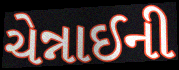
ચેન્નાઈની